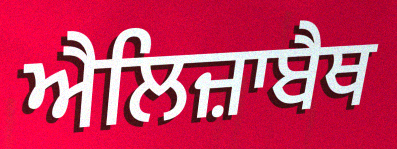
ਐਲਿਜ਼ਾਬੈਥ